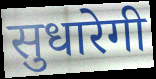
सुधारेगी